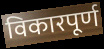
विकारपूर्ण